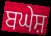
ਬਘੇਸ਼